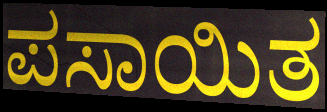
ಪಸಾಯಿತ